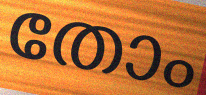
തോം